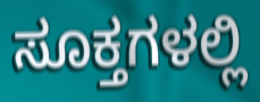
ಸೂಕ್ತಗಳಲ್ಲಿ